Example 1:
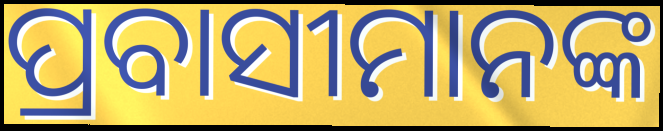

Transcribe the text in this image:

ପ୍ରବାସୀମାନଙ୍କ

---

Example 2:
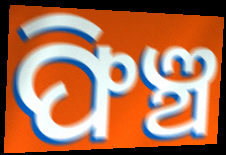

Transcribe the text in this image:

ଫିଞ୍ଚ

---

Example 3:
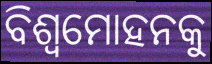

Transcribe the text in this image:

ବିଶ୍ଵମୋହନକୁ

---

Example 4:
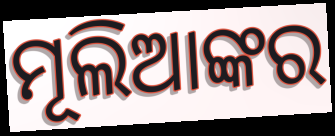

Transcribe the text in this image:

ମୂଲିଆଙ୍କର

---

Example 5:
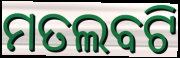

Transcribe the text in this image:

ମତଲବଟି